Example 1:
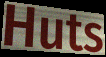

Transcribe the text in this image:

Huts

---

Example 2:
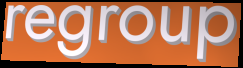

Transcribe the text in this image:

regroup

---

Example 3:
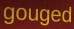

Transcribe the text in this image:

gouged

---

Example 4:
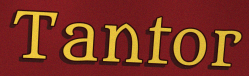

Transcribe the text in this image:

Tantor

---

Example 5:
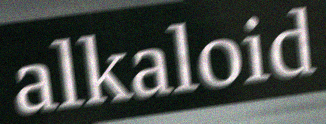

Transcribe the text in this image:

alkaloid